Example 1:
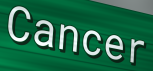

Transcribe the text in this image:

Cancer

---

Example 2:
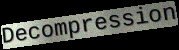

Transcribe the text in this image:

Decompression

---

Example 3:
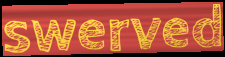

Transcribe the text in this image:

swerved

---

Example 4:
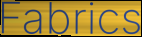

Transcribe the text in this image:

Fabrics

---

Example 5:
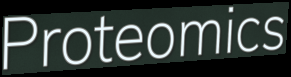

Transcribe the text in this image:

Proteomics